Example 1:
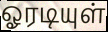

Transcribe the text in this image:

ஓரடியுள்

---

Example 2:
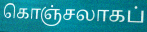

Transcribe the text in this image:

கொஞ்சலாகப்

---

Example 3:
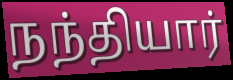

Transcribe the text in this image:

நந்தியார்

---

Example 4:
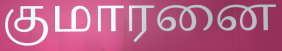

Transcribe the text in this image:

குமாரனை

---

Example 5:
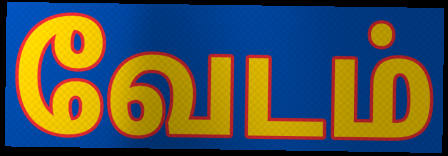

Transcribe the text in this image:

வேடம்